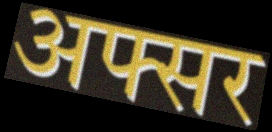
अफ्सर